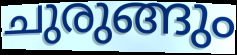
ചുരുങ്ങും